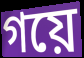
গয়ে